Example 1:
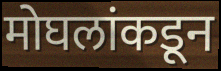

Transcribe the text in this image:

मोघलांकडून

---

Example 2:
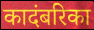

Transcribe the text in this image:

कादंबरिका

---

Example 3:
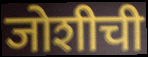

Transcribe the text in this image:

जोशीची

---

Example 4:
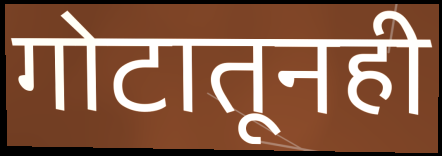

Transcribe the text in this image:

गोटातूनही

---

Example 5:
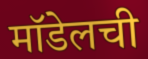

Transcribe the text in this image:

मॉडेलची